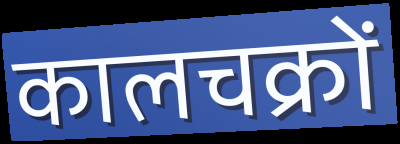
कालचक्रों